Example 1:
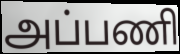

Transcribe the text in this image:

அப்பணி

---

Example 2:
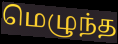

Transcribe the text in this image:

மெழுந்த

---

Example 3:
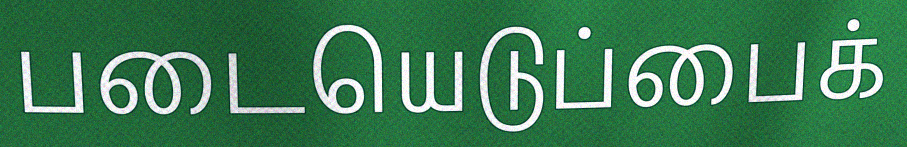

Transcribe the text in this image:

படையெடுப்பைக்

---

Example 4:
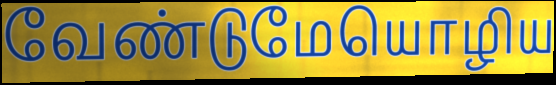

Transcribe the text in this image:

வேண்டுமேயொழிய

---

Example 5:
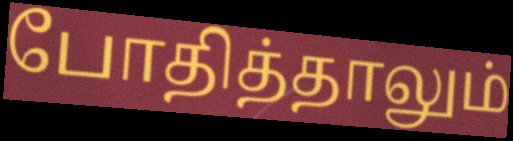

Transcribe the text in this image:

போதித்தாலும்